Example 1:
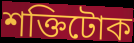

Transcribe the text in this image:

শক্তিটোক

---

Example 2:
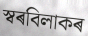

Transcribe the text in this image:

স্বৰবিলাকৰ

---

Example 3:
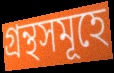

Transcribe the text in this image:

গ্ৰন্থসমূহে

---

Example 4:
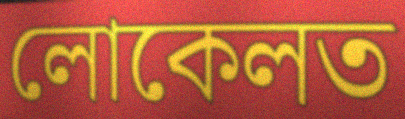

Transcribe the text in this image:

লোকেলত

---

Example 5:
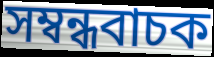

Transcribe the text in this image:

সম্বন্ধবাচক